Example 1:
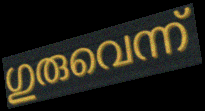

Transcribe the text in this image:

ഗുരുവെന്ന്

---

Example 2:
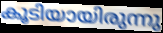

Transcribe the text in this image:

കൂടിയായിരുന്നു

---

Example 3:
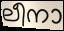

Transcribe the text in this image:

ലീനാ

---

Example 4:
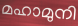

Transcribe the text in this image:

മഹാമുനി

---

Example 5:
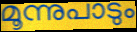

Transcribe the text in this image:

മൂന്നുപാടും